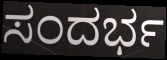
ಸಂದರ್ಭ